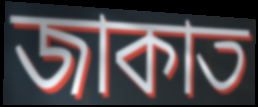
জাকাত